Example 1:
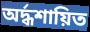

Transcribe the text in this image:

অর্দ্ধশায়িত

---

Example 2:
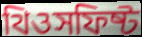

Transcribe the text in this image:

থিওসফিষ্ট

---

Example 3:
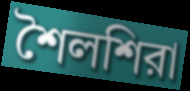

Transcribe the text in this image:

শৈলশিরা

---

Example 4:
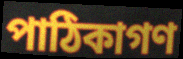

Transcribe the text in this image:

পাঠিকাগণ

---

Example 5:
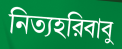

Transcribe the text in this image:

নিত্যহরিবাবু